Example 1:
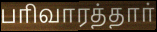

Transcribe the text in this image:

பரிவாரத்தார்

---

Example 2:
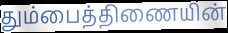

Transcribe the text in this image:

தும்பைத்திணையின்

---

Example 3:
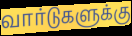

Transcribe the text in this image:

வார்டுகளுக்கு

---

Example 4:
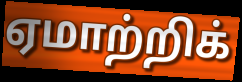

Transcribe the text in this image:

ஏமாற்றிக்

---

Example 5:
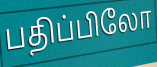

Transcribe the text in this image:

பதிப்பிலோ